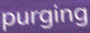
purging